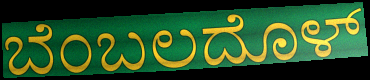
ಬೆಂಬಲದೊಳ್